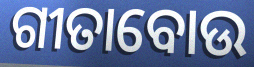
ଗୀତାବୋଉ